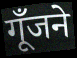
गूँजने